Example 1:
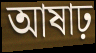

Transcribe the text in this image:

আষাঢ়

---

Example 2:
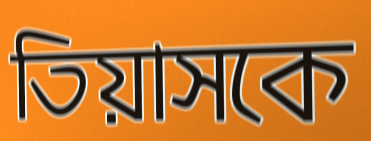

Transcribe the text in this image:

তিয়াসকে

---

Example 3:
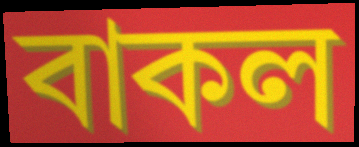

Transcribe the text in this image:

বাকল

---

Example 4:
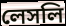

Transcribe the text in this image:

লেসলি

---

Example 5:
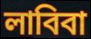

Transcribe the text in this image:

লাবিবা